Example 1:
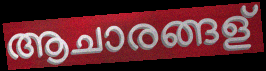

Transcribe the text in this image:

ആചാരങ്ങള്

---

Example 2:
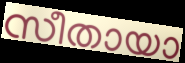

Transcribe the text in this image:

സീതായാ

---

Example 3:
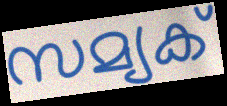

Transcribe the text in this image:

സമ്യക്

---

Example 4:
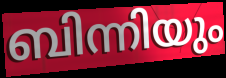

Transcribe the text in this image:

ബിന്നിയും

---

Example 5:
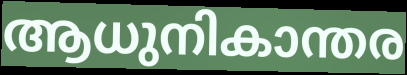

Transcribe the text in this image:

ആധുനികാന്തര